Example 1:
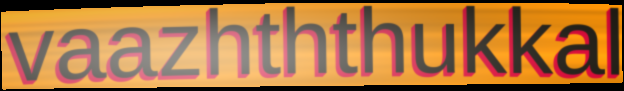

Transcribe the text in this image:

vaazhththukkal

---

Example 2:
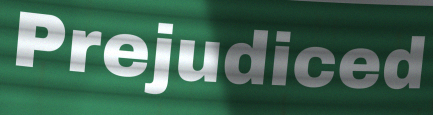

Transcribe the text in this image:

Prejudiced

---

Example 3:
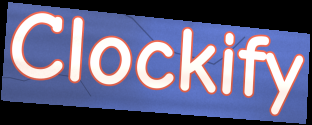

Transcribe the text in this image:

Clockify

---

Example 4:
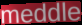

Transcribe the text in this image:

meddle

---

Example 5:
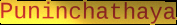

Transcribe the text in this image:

Puninchathaya